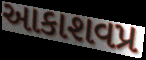
આકાશવપ્ર